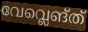
വേവ്ലെങ്ത്